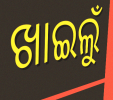
ଖାଇଲୁଁ